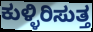
ಕುಳ್ಳಿರಿಸುತ್ತ